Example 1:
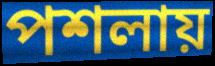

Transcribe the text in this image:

পশলায়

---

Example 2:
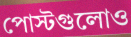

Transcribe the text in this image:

পোস্টগুলোও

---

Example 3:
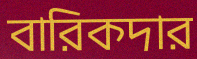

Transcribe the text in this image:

বারিকদার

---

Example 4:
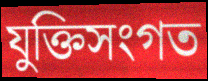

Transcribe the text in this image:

যুক্তিসংগত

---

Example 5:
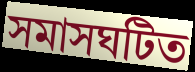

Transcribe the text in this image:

সমাসঘটিত